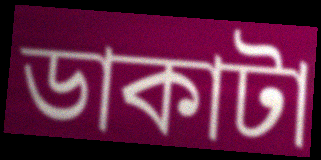
ডাকাটা